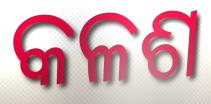
କଳଶ